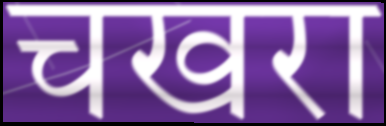
चखरा